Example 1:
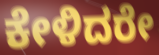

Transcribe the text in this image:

ಕೇಳಿದರೇ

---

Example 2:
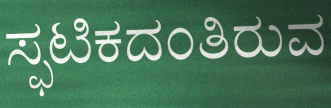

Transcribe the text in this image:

ಸ್ಫಟಿಕದಂತಿರುವ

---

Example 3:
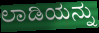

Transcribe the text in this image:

ಲಾಡಿಯನ್ನು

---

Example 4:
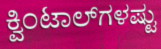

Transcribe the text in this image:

ಕ್ವಿಂಟಾಲ್‌ಗಳಷ್ಟು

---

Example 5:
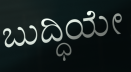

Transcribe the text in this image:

ಬುದ್ಧಿಯೇ